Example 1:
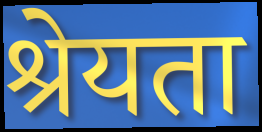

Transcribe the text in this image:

श्रेयता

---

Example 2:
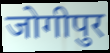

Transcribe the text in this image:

जोगीपुर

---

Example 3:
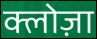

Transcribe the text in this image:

क्लोज़ा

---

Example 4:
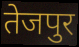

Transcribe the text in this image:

तेजपुर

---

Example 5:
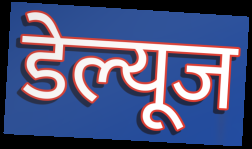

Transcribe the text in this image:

डेल्यूज